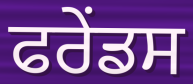
ਫਰੇਂਡਸ